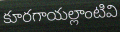
కూరగాయల్లాంటివి